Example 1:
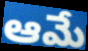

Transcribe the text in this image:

ఆమే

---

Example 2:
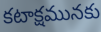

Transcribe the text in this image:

కటాక్షమునకు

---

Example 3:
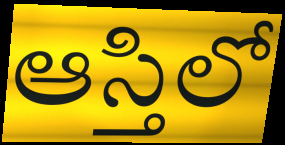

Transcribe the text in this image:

ఆస్తిలో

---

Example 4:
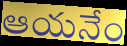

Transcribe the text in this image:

ఆయనేం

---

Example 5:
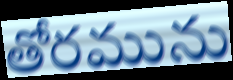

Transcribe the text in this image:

తోరమును